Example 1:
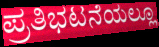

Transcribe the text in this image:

ಪ್ರತಿಭಟನೆಯಲ್ಲೂ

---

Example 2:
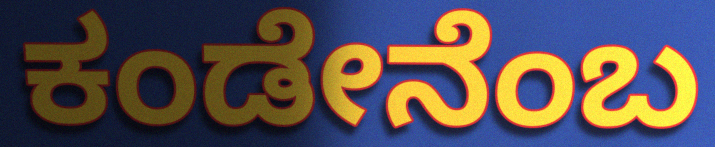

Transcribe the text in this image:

ಕಂಡೇನೆಂಬ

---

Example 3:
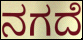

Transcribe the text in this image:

ನಗದೆ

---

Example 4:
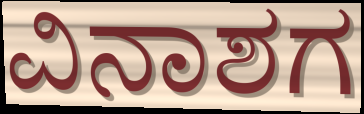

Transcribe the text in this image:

ವಿನಾಶಗ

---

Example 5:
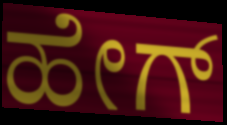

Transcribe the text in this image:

ಹೇಗ್